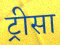
ट्रीसा